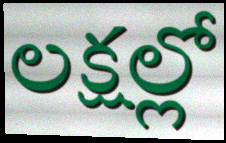
లక్షల్లో